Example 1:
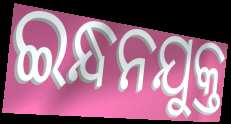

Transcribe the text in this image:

ଇନ୍ଧନଯୁକ୍ତ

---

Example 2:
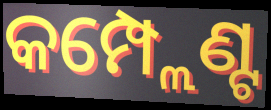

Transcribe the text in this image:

କମ୍ପ୍ଲେଣ୍ଟ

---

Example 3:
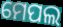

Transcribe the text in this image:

ମେପଲ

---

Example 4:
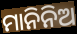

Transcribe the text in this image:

ମାନିନିଅ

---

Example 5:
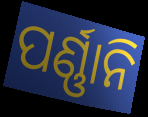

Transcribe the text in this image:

ପର୍ଣ୍ଣାନି